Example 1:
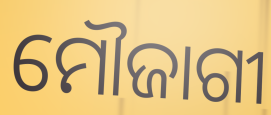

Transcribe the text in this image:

ମୌଜାଗୀ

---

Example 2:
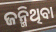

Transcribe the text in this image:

ଜନ୍ମିଥିବା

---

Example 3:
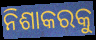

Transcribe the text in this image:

ନିଶାକରକୁ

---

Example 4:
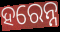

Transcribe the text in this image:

ହରେନ୍ନ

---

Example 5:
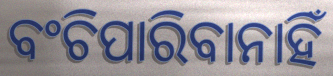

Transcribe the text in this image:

ବଂଚିପାରିବାନାହିଁ